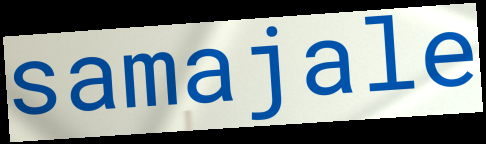
samajale